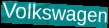
Volkswagen